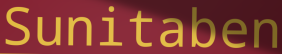
Sunitaben